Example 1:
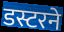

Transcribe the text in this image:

डस्टरने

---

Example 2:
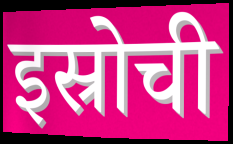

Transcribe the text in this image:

इस्रोची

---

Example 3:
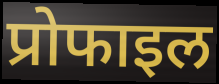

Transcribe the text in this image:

प्रोफाइल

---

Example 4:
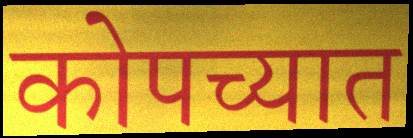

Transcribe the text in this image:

कोपच्यात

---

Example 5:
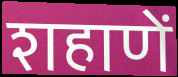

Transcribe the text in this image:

शहाणें